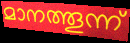
മാനത്തൂന്ന്